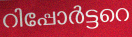
റിപ്പോർട്ടറെ